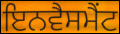
ਇਨਵੈਸਮੈਂਟ